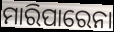
ମାରିପାରେନା